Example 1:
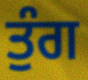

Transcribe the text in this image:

ਤੁੰਗ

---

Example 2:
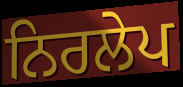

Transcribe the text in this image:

ਨਿਰਲੇਪ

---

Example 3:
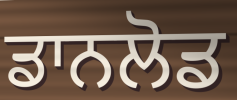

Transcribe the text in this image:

ਡਾਨਲੋਡ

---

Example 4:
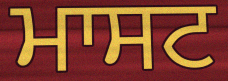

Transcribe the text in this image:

ਮਾਸਟ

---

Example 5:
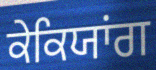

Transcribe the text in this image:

ਕੇਕਿਯਾਂਗ